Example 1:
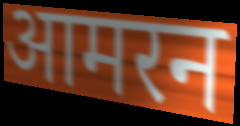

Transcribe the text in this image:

आमरन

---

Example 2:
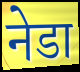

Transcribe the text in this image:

नेडा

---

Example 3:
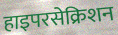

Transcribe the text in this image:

हाइपरसेक्रिशन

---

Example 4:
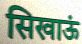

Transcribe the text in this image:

सिखाऊं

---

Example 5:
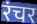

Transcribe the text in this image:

रंचर